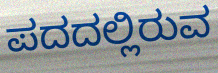
ಪದದಲ್ಲಿರುವ